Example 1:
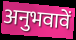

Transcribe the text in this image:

अनुभवावें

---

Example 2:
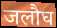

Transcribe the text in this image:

जलौघ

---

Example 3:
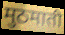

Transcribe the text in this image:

मुठमाती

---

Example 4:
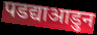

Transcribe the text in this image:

पडद्याआडुन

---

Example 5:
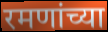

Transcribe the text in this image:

रमणांच्या